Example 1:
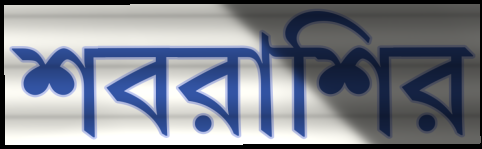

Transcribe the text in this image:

শবরাশির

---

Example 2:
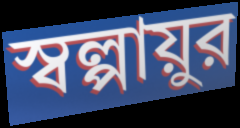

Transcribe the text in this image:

স্বল্পায়ুর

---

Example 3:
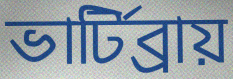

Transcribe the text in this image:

ভার্টিব্রায়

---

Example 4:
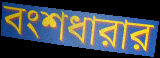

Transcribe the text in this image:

বংশধারার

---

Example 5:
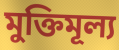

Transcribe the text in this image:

মুক্তিমূল্য